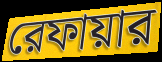
রেফায়ার